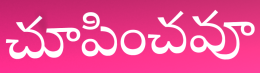
చూపించవూ